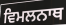
ਵਿਮਲਨਾਥ